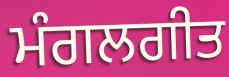
ਮੰਗਲਗੀਤ